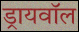
ड्रायवॉल